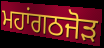
ਮਹਾਂਗਠਜੋਡ਼